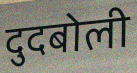
दुदबोली